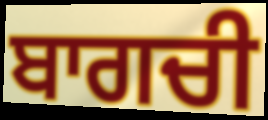
ਬਾਗਚੀ